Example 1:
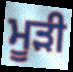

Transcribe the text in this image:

ਮੂੜੀ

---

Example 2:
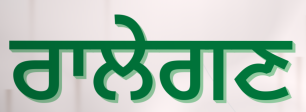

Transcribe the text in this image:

ਰਾਲੇਗਣ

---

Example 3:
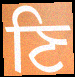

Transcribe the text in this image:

ਣਿ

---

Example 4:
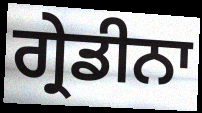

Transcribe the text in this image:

ਗ੍ਰੇਡੀਨਾ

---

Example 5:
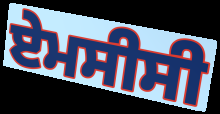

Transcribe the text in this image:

ਏਮਸੀਸੀ